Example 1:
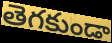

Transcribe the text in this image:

తెగకుండా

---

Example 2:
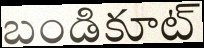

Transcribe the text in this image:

బండికూట్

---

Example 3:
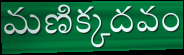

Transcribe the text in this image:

మణిక్కదవం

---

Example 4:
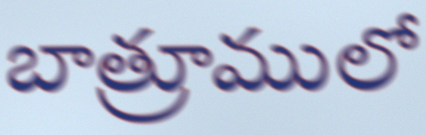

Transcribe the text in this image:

బాత్రూములో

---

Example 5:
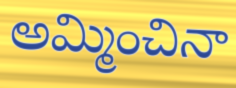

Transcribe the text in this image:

అమ్మించినా